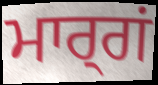
ਮਾਰ੍ਗਂ